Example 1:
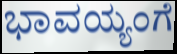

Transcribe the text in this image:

ಭಾವಯ್ಯಂಗೆ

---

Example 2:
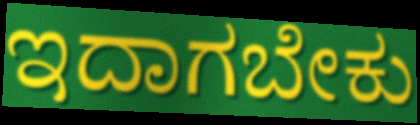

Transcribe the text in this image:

ಇದಾಗಬೇಕು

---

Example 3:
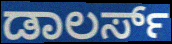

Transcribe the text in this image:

ಡಾಲರ್ಸ್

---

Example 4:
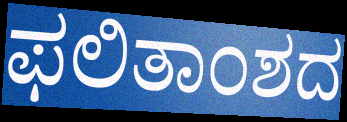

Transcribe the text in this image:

ಫಲಿತಾಂಶದ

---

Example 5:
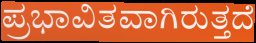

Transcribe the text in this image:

ಪ್ರಭಾವಿತವಾಗಿರುತ್ತದೆ